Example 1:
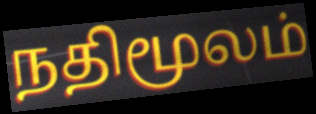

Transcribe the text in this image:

நதிமூலம்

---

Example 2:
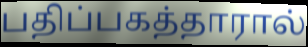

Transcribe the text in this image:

பதிப்பகத்தாரால்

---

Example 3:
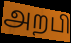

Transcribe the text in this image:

அறபி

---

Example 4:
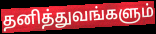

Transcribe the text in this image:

தனித்துவங்களும்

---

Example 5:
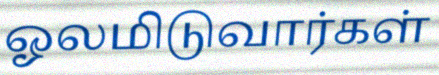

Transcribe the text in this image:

ஓலமிடுவார்கள்